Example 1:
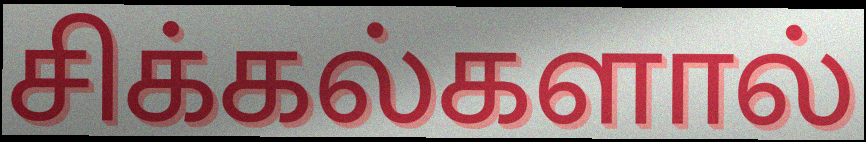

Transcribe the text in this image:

சிக்கல்களால்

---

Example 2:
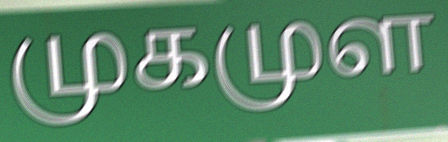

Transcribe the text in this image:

முகமுள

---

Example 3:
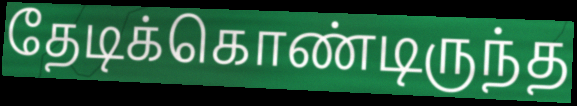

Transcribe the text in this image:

தேடிக்கொண்டிருந்த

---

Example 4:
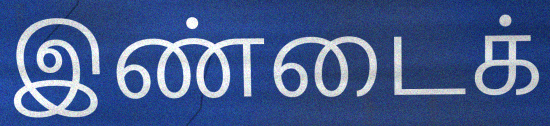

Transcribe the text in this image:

இண்டைக்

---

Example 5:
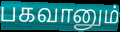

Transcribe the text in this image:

பகவானும்